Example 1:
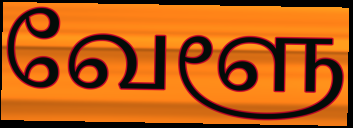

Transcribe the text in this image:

வேளூ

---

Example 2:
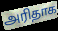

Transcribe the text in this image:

அரிதாக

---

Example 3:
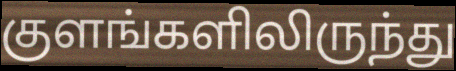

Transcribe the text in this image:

குளங்களிலிருந்து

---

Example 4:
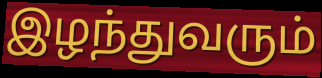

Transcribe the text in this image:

இழந்துவரும்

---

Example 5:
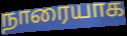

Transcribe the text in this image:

நாரையாக